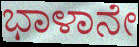
ಭಾಳಾನೇ